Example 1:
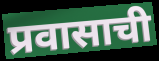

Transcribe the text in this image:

प्रवासाची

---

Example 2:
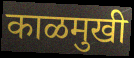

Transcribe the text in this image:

काळमुखी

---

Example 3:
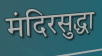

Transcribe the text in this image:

मंदिरसुद्धा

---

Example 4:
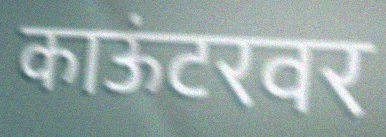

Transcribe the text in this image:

काऊंटरवर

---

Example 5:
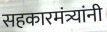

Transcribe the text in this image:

सहकारमंत्र्यांनी